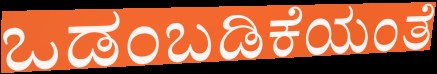
ಒಡಂಬಡಿಕೆಯಂತೆ